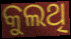
କୁଲଥି